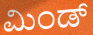
ಮಿಂಡ್